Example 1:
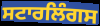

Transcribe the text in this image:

ਸਟਾਰਲਿੰਗਸ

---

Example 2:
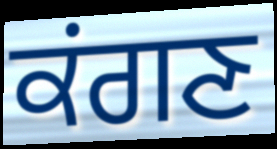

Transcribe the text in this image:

ਕਂਗਣ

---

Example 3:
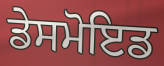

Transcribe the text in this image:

ਡੇਸਮੋਇਡ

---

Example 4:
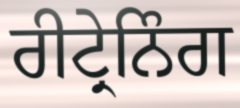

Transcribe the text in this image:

ਰੀਟ੍ਰੇਨਿੰਗ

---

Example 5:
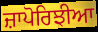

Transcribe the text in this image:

ਜ਼ਾਪੋਰਿਝੀਆ